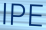
IPE